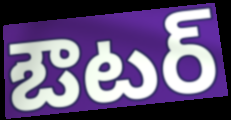
ఔటర్